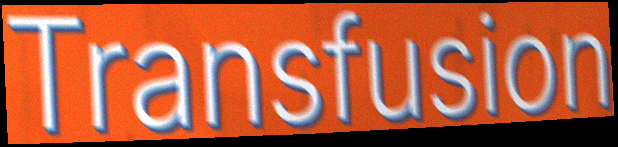
Transfusion